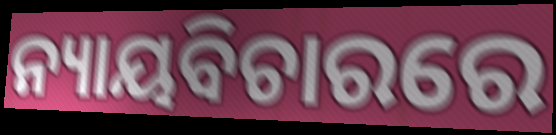
ନ୍ୟାୟବିଚାରରେ